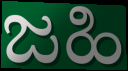
ಜಹಿ